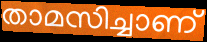
താമസിച്ചാണ്